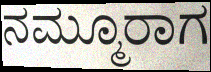
ನಮ್ಮೂರಾಗ